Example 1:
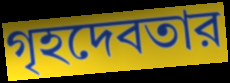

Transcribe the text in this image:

গৃহদেবতার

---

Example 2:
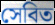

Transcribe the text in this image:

সেবিত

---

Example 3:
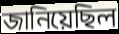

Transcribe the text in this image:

জানিয়েছিল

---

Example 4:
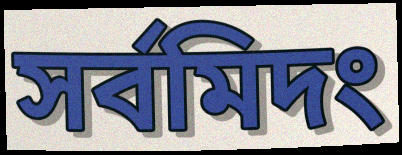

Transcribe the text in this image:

সর্বমিদং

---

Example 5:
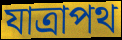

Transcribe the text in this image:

যাত্রাপথ